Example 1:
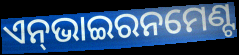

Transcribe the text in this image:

ଏନ୍‌ଭାଇରନମେଣ୍ଟ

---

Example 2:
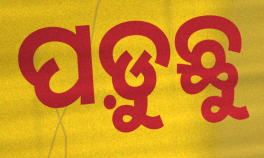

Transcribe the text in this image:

ପଡ଼ୁଛୁ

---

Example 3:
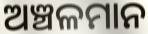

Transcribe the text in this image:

ଅଞ୍ଚଳମାନ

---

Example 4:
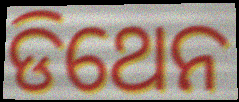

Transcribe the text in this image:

ଡିଥେନ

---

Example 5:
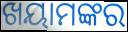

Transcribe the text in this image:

ଖୟାମଙ୍କର